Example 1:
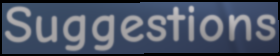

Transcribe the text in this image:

Suggestions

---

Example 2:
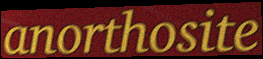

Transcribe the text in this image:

anorthosite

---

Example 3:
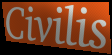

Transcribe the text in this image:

Civilis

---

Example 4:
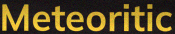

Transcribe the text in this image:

Meteoritic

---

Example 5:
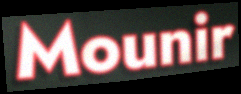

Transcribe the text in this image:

Mounir